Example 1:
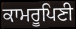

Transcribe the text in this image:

ਕਾਮਰੂਪਿਣੀ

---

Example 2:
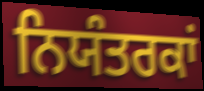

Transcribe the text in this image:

ਨਿਯੰਤਰਕਾਂ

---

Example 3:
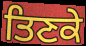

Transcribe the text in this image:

ਤਿਣਕੇ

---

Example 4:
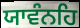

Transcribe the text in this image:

ਯਾਵੰਨਹਿ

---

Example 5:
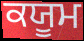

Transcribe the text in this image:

ਕਯੂਮ